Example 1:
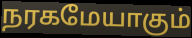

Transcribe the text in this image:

நரகமேயாகும்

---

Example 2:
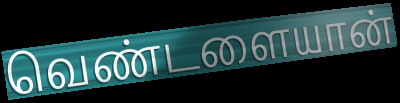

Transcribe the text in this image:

வெண்டளையான்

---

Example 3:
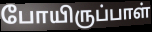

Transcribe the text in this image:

போயிருப்பாள்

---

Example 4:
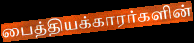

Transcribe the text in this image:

பைத்தியக்காரர்களின்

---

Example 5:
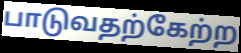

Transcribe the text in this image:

பாடுவதற்கேற்ற